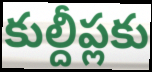
కుల్దీప్లకు